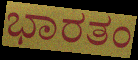
ಭಾರತಂ